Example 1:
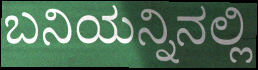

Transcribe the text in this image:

ಬನಿಯನ್ನಿನಲ್ಲಿ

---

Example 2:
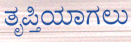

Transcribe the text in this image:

ತೃಪ್ತಿಯಾಗಲು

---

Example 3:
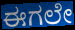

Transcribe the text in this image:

ಈಗಲೇ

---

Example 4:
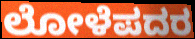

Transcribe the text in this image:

ಲೋಳೆಪದರ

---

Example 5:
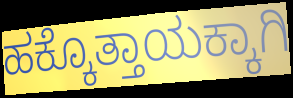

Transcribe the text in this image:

ಹಕ್ಕೊತ್ತಾಯಕ್ಕಾಗಿ